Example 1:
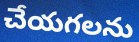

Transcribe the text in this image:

చేయగలను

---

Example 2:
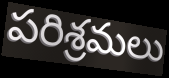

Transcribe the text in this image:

పరిశ్రమలు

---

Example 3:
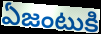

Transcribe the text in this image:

ఏజంటుకి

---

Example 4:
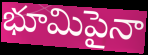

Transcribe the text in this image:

భూమిపైనా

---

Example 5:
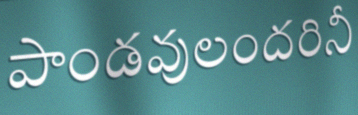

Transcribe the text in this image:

పాండవులందరినీ